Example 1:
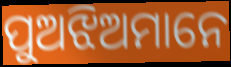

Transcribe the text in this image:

ପୁଅଝିଅମାନେ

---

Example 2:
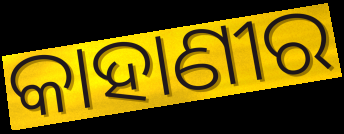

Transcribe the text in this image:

କାହାଣୀର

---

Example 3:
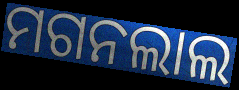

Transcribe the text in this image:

ମଗନଲାଲ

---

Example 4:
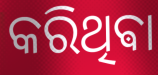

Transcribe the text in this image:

କରିଥିଵା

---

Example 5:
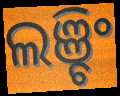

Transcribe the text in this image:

ଲଞ୍ଚିଂ